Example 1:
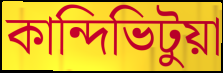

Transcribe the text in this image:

কান্দিভিটুয়া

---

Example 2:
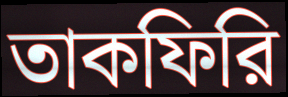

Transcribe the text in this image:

তাকফিরি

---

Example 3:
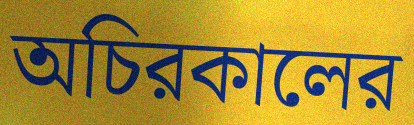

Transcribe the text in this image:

অচিরকালের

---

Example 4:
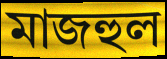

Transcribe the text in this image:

মাজহুল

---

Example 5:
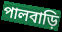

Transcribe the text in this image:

পালবাড়ি